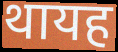
थायह